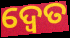
ଦ୍ବେତ